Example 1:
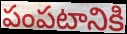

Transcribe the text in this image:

పంపటానికి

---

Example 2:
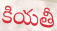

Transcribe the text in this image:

కియతీ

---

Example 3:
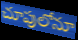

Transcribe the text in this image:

చూపులోనూ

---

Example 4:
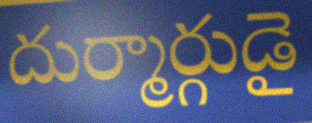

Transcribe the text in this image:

దుర్మార్గుడై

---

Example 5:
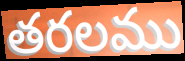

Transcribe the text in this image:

తరలము